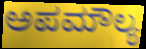
ಅಪಮೌಲ್ಯ